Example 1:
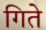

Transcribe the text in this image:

गिते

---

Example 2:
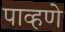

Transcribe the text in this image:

पाव्हणे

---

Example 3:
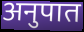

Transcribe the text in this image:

अनुपात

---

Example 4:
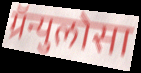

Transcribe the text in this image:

ग्रॅन्युलोसा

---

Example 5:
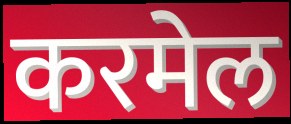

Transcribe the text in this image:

करमेल